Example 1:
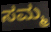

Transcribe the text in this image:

ಸಮ್ಮ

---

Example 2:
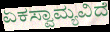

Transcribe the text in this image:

ಏಕಸ್ವಾಮ್ಯವಿದೆ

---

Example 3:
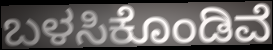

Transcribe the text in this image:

ಬಳಸಿಕೊಂಡಿವೆ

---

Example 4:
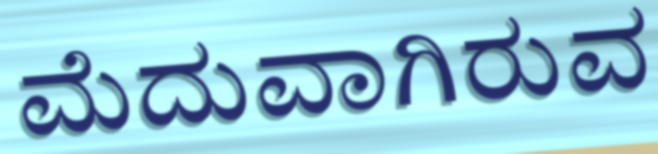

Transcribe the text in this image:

ಮೆದುವಾಗಿರುವ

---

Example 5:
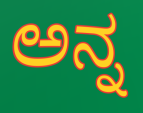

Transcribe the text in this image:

ಅನ್ನ